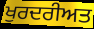
ਖੁਰਦਰੀਅਤ